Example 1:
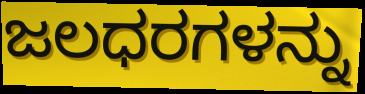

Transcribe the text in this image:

ಜಲಧರಗಳನ್ನು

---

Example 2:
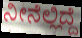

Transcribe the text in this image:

ನೀನೆಲ್ಲಿದ್ದೆ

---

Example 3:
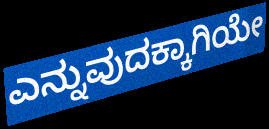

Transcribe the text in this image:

ಎನ್ನುವುದಕ್ಕಾಗಿಯೇ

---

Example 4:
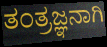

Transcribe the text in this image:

ತಂತ್ರಜ್ಞನಾಗಿ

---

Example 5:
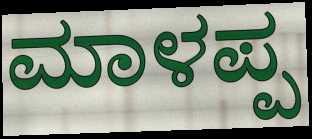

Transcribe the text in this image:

ಮಾಳಪ್ಪ